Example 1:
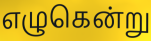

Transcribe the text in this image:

எழுகென்று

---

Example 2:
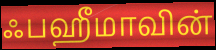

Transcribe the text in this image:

ஃபஹீமாவின்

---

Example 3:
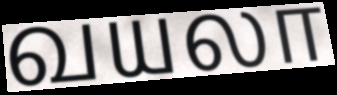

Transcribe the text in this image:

வயலா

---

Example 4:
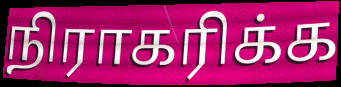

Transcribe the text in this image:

நிராகரிக்க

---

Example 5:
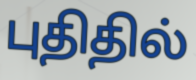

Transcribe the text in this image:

புதிதில்